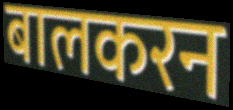
बालकरन